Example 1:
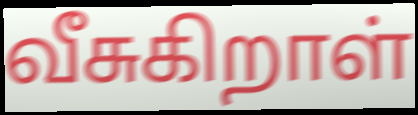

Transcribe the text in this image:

வீசுகிறாள்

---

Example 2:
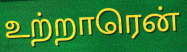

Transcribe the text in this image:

உற்றாரென்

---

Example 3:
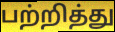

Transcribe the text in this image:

பற்றித்து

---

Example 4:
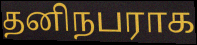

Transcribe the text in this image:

தனிநபராக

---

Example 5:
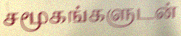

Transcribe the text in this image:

சமூகங்களுடன்